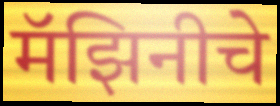
मॅझिनीचे